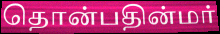
தொன்பதின்மர்